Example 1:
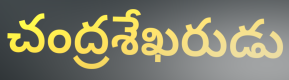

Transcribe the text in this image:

చంద్రశేఖరుడు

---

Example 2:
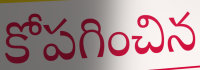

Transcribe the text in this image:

కోపగించిన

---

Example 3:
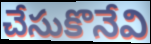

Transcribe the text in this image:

చేసుకొనేవి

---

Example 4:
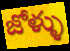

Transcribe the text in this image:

జోళ్ళు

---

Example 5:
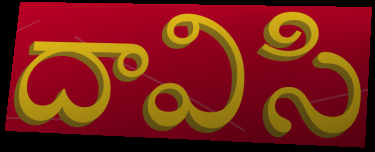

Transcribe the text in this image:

దావిసి